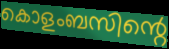
കൊളംബസിന്റെ